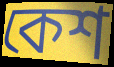
কেশ